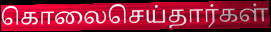
கொலைசெய்தார்கள்